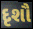
દૃશૌ